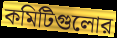
কমিটিগুলোর